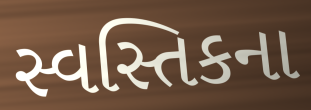
સ્વસ્તિકના